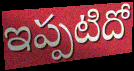
ఇప్పటిదో